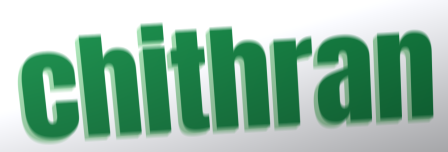
chithran